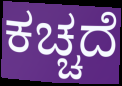
ಕಚ್ಚದೆ